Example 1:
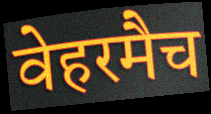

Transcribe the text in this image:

वेहरमैच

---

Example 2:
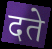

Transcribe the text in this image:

दते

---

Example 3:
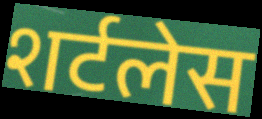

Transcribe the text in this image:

शर्टलेस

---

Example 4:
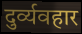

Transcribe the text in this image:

दुर्व्यवहार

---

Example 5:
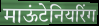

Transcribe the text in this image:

माऊंटेनियरिंग